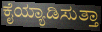
ಕೈಯ್ಯಾಡಿಸುತ್ತಾ